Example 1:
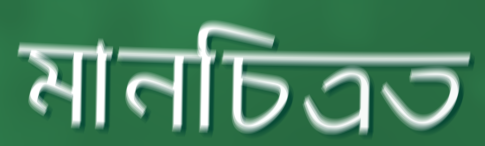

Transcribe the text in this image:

মানচিত্ৰত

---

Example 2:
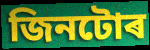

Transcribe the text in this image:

জিনটোৰ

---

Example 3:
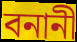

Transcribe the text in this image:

বনানী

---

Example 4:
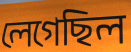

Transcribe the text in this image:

লেগেছিল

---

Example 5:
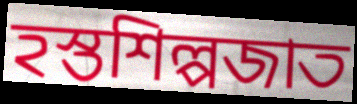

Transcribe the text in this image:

হস্তশিল্পজাত